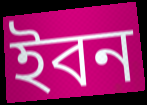
ইবন